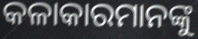
କଳାକାରମାନଙ୍କୁ